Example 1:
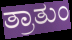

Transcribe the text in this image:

ತ್ರಾತುಂ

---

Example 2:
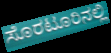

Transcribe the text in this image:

ಸೊರಟೂರಿನಲ್ಲಿ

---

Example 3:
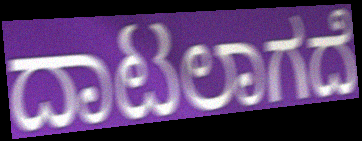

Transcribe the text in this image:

ದಾಟಲಾಗದೆ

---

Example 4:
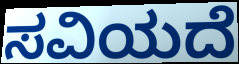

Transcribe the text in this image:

ಸವಿಯದೆ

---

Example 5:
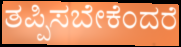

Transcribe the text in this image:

ತಪ್ಪಿಸಬೇಕೆಂದರೆ